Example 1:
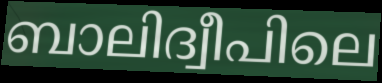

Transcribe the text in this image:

ബാലിദ്വീപിലെ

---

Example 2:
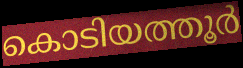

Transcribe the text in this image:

കൊടിയത്തൂർ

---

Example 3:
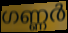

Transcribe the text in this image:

ഗണ്ണർ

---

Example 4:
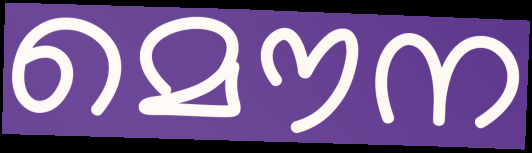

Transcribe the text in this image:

മൌന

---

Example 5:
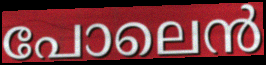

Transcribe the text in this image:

പോലെൻ